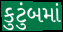
કુટુંબમાં